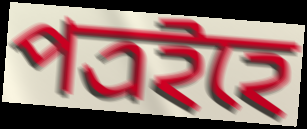
পত্ৰইহে